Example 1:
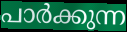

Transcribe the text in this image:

പാർക്കുന്ന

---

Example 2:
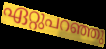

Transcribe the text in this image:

ഏറ്റുപറഞ്ഞു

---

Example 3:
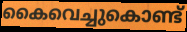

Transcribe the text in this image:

കൈവെച്ചുകൊണ്ട്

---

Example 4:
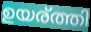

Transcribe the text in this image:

ഉയര്ത്തി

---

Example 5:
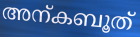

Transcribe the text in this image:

അന്കബൂത്